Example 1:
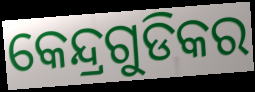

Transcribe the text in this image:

କେନ୍ଦ୍ରଗୁଡିକର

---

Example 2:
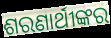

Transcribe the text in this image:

ଶରଣାର୍ଥୀଙ୍କର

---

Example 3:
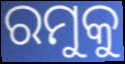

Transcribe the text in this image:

ରମୁକୁ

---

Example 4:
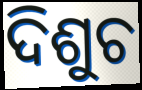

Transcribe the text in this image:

ଦିଶୁଚ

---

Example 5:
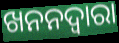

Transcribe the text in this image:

ଖନନଦ୍ୱାରା